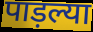
पाड़ल्या